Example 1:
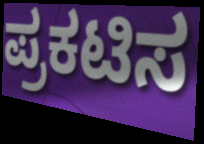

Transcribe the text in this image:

ಪ್ರಕಟಿಸ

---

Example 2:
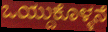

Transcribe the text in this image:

ಒಯ್ದುಕೊಳ್ಳನೆ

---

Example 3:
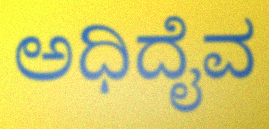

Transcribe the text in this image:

ಅಧಿದೈವ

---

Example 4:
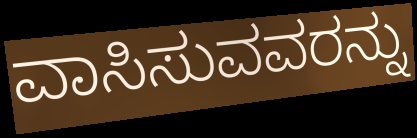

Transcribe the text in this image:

ವಾಸಿಸುವವರನ್ನು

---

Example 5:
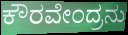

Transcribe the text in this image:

ಕೌರವೇಂದ್ರನು